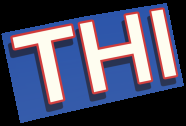
THI